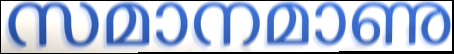
സമാനമാണു